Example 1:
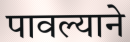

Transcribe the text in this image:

पावल्याने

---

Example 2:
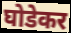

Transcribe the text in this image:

घोडेकर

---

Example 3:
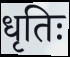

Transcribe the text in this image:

धृतिः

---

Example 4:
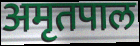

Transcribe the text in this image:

अमृतपाल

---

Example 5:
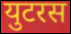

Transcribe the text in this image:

युटरस